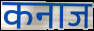
कनाज